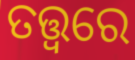
ତତ୍ତ୍ୱରେ